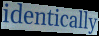
identically